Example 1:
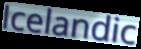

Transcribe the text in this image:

Icelandic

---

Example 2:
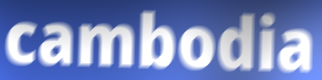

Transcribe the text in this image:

cambodia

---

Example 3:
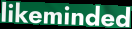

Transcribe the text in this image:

likeminded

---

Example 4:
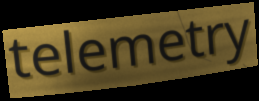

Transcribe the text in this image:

telemetry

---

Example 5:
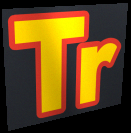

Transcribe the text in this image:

Tr